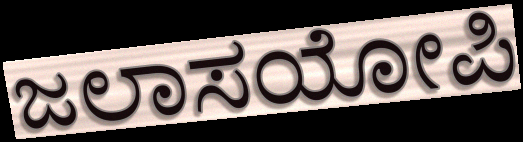
ಜಲಾಸಯೋಪಿ